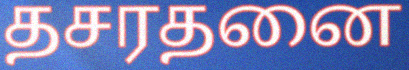
தசரதனை